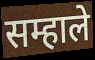
सम्हाले